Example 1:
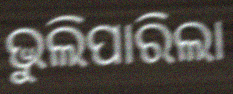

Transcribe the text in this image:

ଭୁଲିପାରିଲା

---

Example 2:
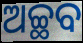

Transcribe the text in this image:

ଅଚ୍ଛବ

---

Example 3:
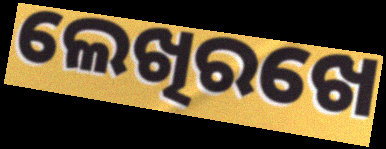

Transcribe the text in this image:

ଲେଖିରଖେ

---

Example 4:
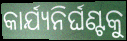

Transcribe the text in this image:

କାର୍ଯ୍ୟନିର୍ଘଣ୍ଟକୁ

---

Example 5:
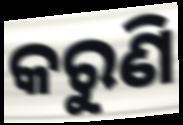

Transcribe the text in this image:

କରୁଣି